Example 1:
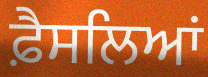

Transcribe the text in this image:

ਫ਼ੈਸਲਿਆਂ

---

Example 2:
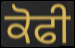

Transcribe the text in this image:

ਕੋਫੀ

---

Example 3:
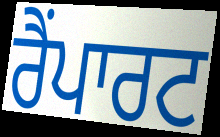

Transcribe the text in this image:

ਰੈਂਪਾਰਟ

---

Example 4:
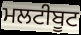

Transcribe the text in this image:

ਮਲਟੀਬੂਟ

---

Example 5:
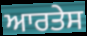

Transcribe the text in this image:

ਆਰਤੇਸ